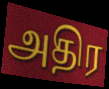
அதிர